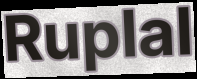
Ruplal